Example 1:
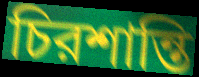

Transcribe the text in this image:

চিরশান্তি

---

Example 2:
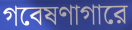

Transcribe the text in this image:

গবেষণাগারে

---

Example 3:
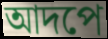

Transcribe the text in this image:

আদপে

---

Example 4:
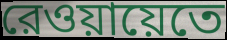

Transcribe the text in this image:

রেওয়ায়েতে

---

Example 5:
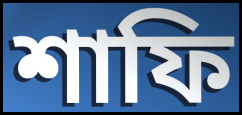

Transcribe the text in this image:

শাফি